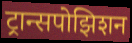
ट्रान्सपोझिशन